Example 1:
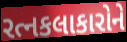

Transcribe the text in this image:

રત્નકલાકારોને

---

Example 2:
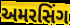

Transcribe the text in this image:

અમરસિંગ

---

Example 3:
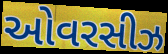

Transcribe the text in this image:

ઓવરસીઝ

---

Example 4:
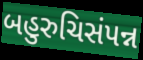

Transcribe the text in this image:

બહુરુચિસંપન્ન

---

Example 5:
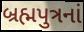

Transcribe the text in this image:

બ્રહ્મપુત્રનાં